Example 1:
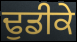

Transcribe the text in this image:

ਢੁਡੀਕੇ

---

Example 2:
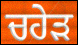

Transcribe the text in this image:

ਚਹੇੜ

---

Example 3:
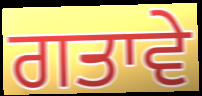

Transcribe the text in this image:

ਗਤਾਵੇ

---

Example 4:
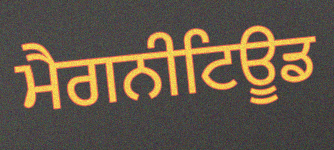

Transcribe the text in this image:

ਮੈਗਨੀਟਿਊਡ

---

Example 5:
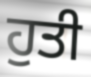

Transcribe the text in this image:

ਹੁਤੀ